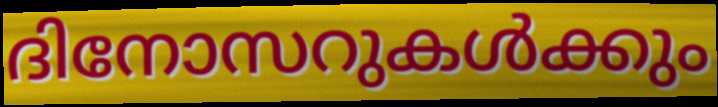
ദിനോസറുകൾക്കും